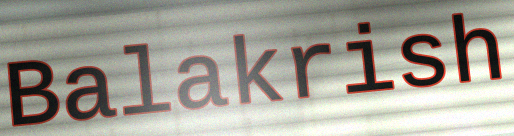
Balakrish